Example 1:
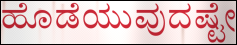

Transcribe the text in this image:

ಹೊಡೆಯುವುದಷ್ಟೇ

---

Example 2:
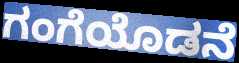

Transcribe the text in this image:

ಗಂಗೆಯೊಡನೆ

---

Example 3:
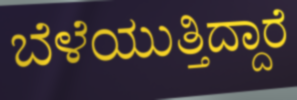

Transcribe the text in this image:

ಬೆಳೆಯುತ್ತಿದ್ದಾರೆ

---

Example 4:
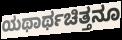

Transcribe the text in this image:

ಯಥಾರ್ಥಚಿತ್ತನೂ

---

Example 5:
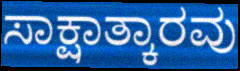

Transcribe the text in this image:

ಸಾಕ್ಷಾತ್ಕಾರವು